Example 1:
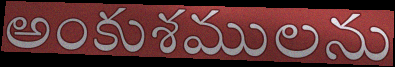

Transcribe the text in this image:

అంకుశములను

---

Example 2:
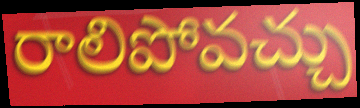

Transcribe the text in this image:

రాలిపోవచ్చు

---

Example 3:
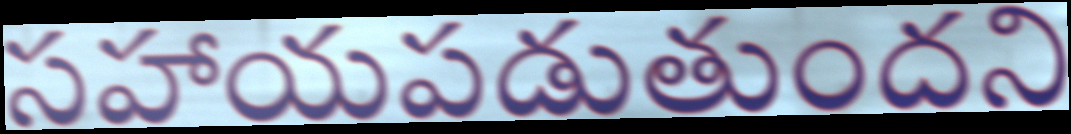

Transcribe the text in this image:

సహాయపడుతుందని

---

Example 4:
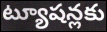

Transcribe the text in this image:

ట్యూషన్లకు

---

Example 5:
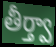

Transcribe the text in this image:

తీర్త్వా